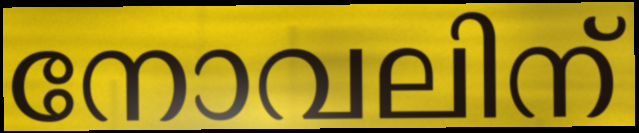
നോവലിന്